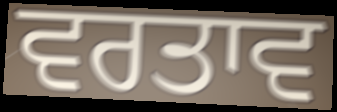
ਵਰਤਾਵ